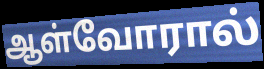
ஆள்வோரால்